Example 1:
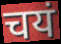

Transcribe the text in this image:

चयं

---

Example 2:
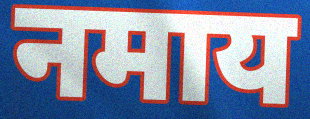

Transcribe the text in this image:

नमाय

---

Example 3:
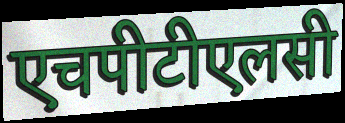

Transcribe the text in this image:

एचपीटीएलसी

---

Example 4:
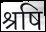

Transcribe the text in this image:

श्रषि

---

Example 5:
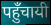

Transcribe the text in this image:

पहुँचायी